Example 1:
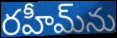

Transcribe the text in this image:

రహీమ్‌ను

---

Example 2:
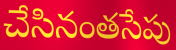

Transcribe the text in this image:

చేసినంతసేపు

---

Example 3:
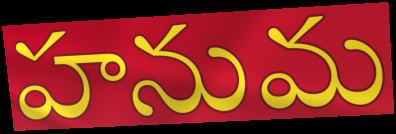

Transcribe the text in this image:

హనుమ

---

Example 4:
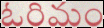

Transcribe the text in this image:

ఓరిమం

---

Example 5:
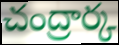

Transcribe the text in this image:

చంద్రార్క